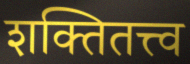
शक्तितत्त्व